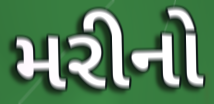
મરીનો